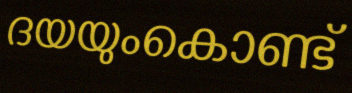
ദയയുംകൊണ്ട്